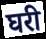
घरी